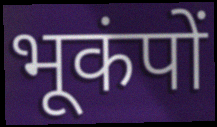
भूकंपों